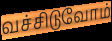
வச்சிடுவோம்